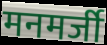
मनमर्जी